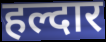
हल्दार